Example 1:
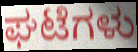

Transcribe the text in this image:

ಘಟೆಗಳು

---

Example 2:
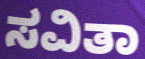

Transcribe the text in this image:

ಸವಿತಾ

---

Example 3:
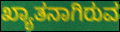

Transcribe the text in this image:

ಖ್ಯಾತನಾಗಿರುವ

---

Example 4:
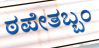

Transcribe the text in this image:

ಠಪೇತಬ್ಬಂ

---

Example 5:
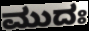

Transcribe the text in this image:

ಮುದಃ